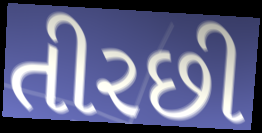
તીરછી